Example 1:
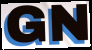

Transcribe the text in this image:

GN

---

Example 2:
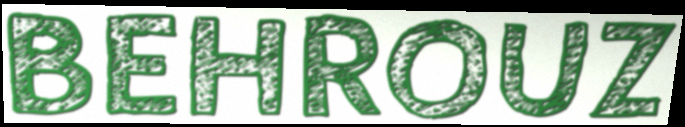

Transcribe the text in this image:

BEHROUZ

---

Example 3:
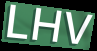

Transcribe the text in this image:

LHV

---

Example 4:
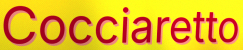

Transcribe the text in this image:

Cocciaretto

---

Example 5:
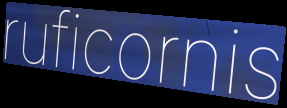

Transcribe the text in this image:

ruficornis